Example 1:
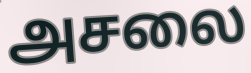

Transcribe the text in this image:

அசலை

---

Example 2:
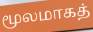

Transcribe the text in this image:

மூலமாகத்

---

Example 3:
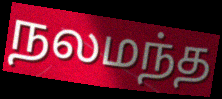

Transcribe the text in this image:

நலமந்த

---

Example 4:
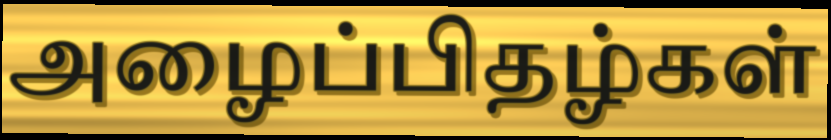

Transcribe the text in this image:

அழைப்பிதழ்கள்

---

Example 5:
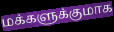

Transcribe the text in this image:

மக்களுக்குமாக